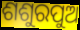
ଶଶୁରପୁଅ